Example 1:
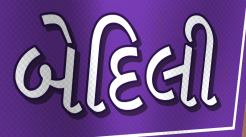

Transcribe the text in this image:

બેદિલી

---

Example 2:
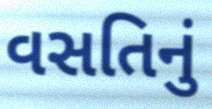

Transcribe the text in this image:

વસતિનું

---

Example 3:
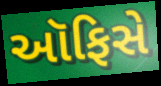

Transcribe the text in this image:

ઑફિસે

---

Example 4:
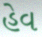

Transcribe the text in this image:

હેવ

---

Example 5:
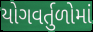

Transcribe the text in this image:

યોગવર્તુળોમાં